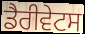
ਡੈਰੀਵੇਟਸ